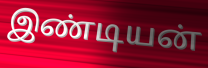
இண்டியன்